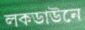
লকডাউনে